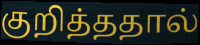
குறித்ததால்